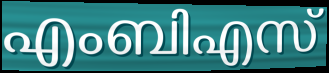
എംബിഎസ്